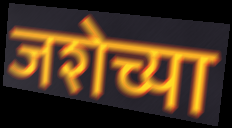
जशेच्या